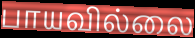
பாயவில்லை